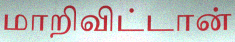
மாறிவிட்டான்